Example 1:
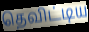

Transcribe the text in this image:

தெவிட்டிய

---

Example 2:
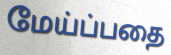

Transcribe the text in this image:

மேய்ப்பதை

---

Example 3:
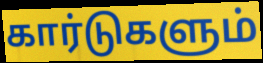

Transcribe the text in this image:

கார்டுகளும்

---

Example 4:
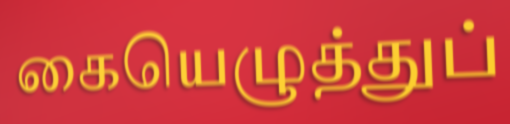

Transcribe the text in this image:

கையெழுத்துப்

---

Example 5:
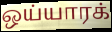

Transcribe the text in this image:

ஒய்யாரக்